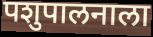
पशुपालनाला